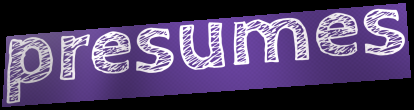
presumes